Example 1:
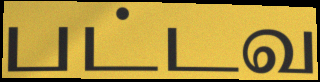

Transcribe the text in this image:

பட்டவ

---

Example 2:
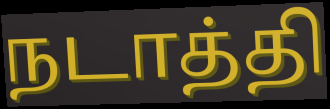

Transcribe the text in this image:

நடாத்தி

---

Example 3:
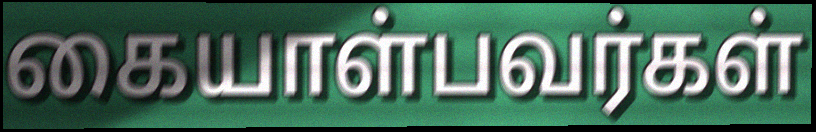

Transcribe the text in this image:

கையாள்பவர்கள்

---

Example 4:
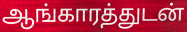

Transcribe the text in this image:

ஆங்காரத்துடன்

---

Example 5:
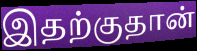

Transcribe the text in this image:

இதற்குதான்